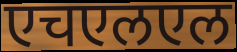
एचएलएल